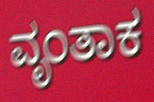
ವೃಂತಾಕ